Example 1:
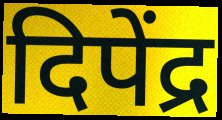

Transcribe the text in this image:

दिपेंद्र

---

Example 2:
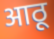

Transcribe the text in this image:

आठू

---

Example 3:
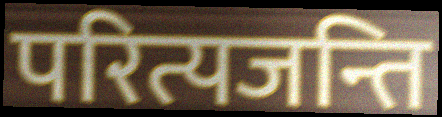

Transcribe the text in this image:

परित्यजन्ति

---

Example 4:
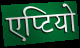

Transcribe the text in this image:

एप्टियो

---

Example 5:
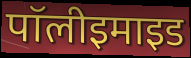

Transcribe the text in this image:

पॉलीइमाइड